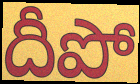
దీపో